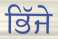
ਭਿੱਜੇ